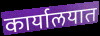
कार्यालयात